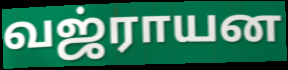
வஜ்ராயன